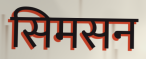
सिमसन